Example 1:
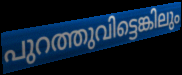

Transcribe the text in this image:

പുറത്തുവിട്ടെങ്കിലും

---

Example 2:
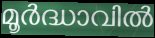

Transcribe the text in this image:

മൂർദ്ധാവിൽ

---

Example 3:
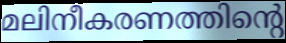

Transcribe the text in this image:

മലിനീകരണത്തിന്റെ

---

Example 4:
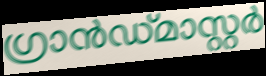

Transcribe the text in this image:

ഗ്രാൻഡ്മാസ്റ്റർ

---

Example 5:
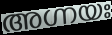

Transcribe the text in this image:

അഗ്നയഃ